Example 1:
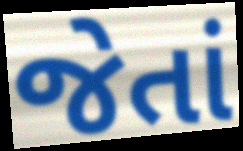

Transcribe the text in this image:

જેતાં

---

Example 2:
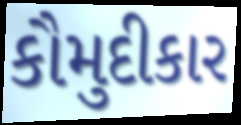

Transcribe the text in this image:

કૌમુદીકાર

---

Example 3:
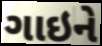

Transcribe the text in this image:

ગાઇને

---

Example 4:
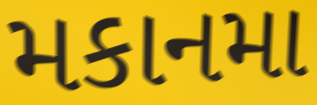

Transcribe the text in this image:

મકાનમા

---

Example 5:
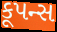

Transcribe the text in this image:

કૂપન્સ